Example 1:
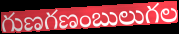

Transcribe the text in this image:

గుణగణంబులుగల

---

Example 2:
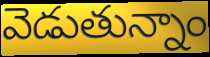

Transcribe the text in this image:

వెడుతున్నాం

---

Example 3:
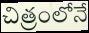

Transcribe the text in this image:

చిత్రంలోనే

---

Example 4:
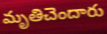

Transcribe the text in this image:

మృతిచెందారు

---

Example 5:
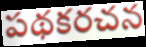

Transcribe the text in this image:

పథకరచన